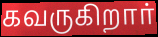
கவருகிறார்